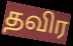
தவிர